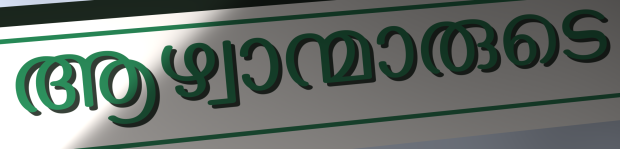
ആഴ്വാന്മാരുടെ